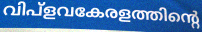
വിപ്ളവകേരളത്തിന്റെ